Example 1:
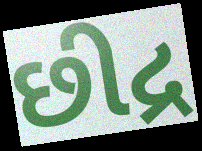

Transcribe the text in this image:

છીદ્ર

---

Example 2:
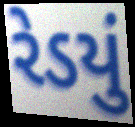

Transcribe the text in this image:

રેડયું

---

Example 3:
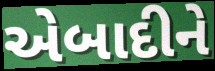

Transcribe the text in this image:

એબાદીને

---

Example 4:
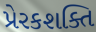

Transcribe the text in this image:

પ્રેરકશક્તિ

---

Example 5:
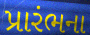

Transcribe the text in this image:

પ્રારંભના